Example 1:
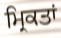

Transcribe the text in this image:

ਮ੍ਰਿਕਤਾਂ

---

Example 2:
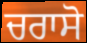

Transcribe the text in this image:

ਚਰਾਸੋ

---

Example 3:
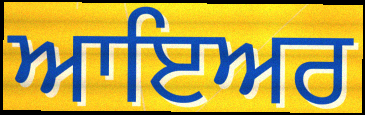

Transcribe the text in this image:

ਆਇਅਰ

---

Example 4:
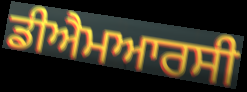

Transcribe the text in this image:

ਡੀਐਮਆਰਸੀ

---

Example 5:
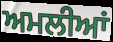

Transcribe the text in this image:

ਅਮਲੀਆਂ